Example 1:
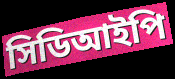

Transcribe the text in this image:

সিডিআইপি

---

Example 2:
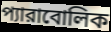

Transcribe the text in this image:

প্যারাবোলিক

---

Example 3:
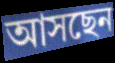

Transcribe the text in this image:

আসছেন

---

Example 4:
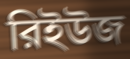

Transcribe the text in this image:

রিইউজ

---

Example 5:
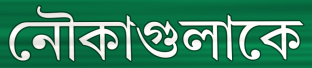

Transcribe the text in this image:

নৌকাগুলাকে